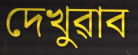
দেখুৱাব